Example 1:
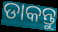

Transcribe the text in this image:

ଡାକନ୍ତୁ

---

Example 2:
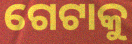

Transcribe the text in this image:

ଗେଟାକୁ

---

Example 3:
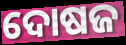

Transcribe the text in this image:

ଦୋଷଜ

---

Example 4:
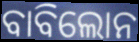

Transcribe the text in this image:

ବାବିଲୋନ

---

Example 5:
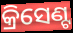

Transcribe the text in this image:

କ୍ରିସେଣ୍ଟ